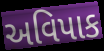
અવિપાક